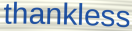
thankless